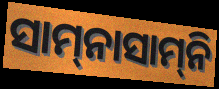
ସାମ୍‍ନାସାମ୍‍ନି